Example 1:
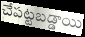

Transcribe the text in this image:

చేపట్టబడ్డాయి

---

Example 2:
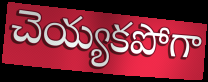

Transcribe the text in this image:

చెయ్యకపోగా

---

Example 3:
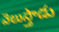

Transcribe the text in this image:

వెలుస్తాడు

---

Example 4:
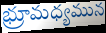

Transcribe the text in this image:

భ్రూమధ్యమున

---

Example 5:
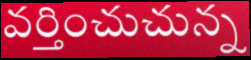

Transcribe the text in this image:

వర్తించుచున్న